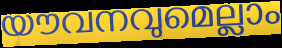
യൗവനവുമെല്ലാം